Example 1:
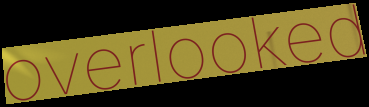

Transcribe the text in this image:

overlooked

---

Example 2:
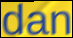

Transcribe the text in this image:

dan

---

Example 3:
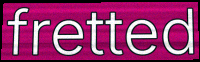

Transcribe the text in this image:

fretted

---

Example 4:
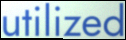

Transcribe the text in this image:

utilized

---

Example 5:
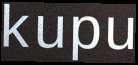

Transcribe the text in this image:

kupu